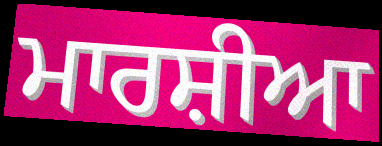
ਮਾਰਸ਼ੀਆ